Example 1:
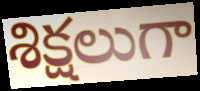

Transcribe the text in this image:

శిక్షలుగా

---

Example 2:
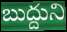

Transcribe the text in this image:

బుద్దుని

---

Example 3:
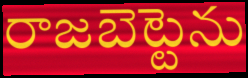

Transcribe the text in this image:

రాజబెట్టెను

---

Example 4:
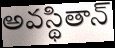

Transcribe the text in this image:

అవస్థితాన్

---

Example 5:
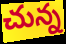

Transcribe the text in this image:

చున్న